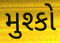
મુશ્કો